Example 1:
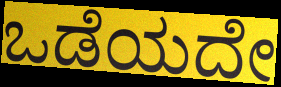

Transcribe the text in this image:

ಒಡೆಯದೇ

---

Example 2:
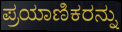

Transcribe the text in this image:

ಪ್ರಯಾಣಿಕರನ್ನು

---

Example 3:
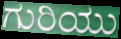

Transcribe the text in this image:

ಗುರಿಯು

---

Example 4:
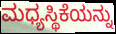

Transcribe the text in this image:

ಮಧ್ಯಸ್ಥಿಕೆಯನ್ನು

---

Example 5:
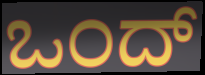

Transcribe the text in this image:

ಒಂದ್